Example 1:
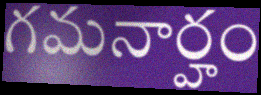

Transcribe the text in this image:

గమనార్హం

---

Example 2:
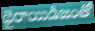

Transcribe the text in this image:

థైరాయిడిజంతో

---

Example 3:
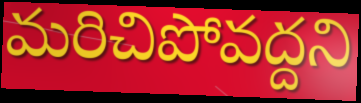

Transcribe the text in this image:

మరిచిపోవద్దని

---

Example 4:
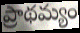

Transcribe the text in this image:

ప్రాథమ్యం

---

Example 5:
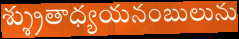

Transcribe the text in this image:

శ్శ్రుతాధ్యయనంబులును